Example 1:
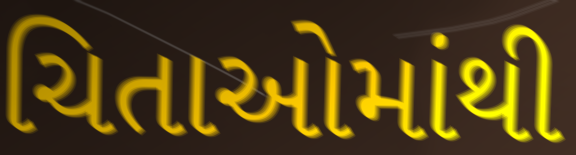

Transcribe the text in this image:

ચિતાઓમાંથી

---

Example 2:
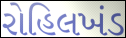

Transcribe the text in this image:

રોહિલખંડ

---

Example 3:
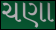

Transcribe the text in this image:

ચણા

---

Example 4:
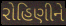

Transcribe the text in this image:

રોહિણીને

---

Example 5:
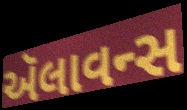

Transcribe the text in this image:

ઍલાવન્સ